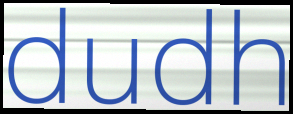
dudh